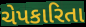
ચેપકારિતા